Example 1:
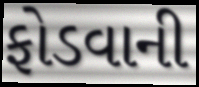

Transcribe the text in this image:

ફોડવાની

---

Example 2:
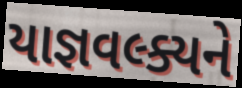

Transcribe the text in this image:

યાજ્ઞવલ્ક્યને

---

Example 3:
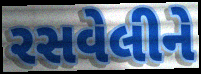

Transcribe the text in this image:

રસવેલીને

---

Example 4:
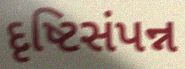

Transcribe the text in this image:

દૃષ્ટિસંપન્ન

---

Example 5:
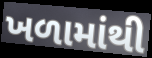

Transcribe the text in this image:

ખળામાંથી